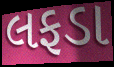
લફડા